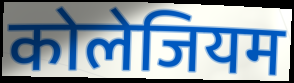
कोलेजियम